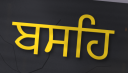
ਬਸਹਿ